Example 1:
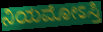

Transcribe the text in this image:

ನಿಯಮೋಽಸ್ತಿ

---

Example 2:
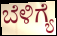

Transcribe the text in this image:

ಬೆಳಿಗ್ಯೆ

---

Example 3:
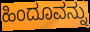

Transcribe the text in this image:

ಹಿಂದೂವನ್ನು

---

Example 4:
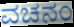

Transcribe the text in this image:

ವಚನಂ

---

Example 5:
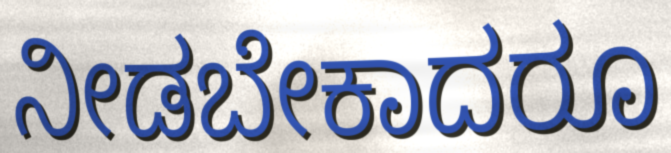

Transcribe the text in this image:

ನೀಡಬೇಕಾದರೂ